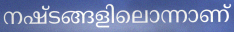
നഷ്ടങ്ങളിലൊന്നാണ്